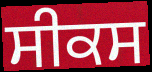
ਸੀਕਸ